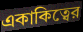
একাকিত্বের